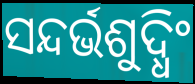
ସନ୍ଦର୍ଭଶୁଦ୍ଧିଂ